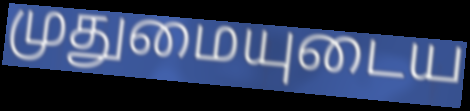
முதுமையுடைய